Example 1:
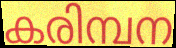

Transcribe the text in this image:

കരിമ്പന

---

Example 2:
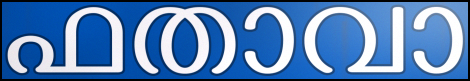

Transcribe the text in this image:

ഫതാവാ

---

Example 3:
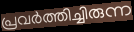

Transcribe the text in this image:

പ്രവർത്തിച്ചിരുന്ന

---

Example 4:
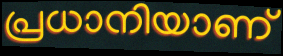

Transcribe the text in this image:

പ്രധാനിയാണ്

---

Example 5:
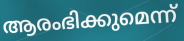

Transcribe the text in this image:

ആരംഭിക്കുമെന്ന്